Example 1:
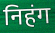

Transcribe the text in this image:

निहंग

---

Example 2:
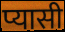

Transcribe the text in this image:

प्यासी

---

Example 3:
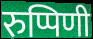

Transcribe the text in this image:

रुप्पिणी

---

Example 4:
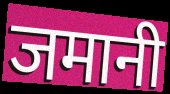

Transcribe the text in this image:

जमानी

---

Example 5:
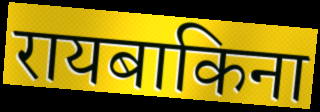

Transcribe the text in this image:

रायबाकिना